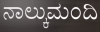
ನಾಲ್ಕುಮಂದಿ